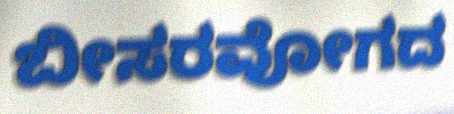
ಬೀಸರವೋಗದ